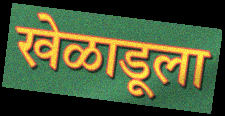
खेळाडूला